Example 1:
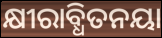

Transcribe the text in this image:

କ୍ଷୀରାବ୍ଧିତନୟା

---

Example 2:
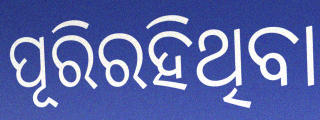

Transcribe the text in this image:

ପୂରିରହିଥିବା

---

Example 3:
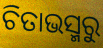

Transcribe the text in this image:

ଚିତାଭସ୍ମରୁ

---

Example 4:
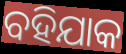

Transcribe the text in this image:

ବହିଯାକ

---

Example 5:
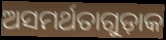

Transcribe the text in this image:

ଅସମର୍ଥତାଗୁଡ଼ାକ